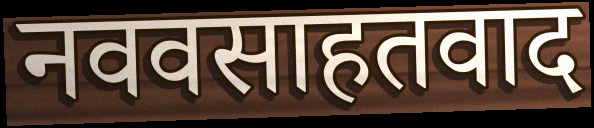
नववसाहतवाद